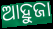
ଆହୁଜା